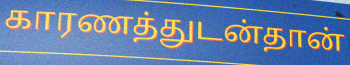
காரணத்துடன்தான்